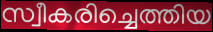
സ്വീകരിച്ചെത്തിയ